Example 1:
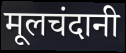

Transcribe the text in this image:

मूलचंदानी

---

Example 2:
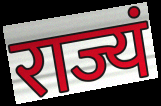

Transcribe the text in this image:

राज्यं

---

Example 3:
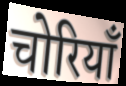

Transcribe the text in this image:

चोरियाँ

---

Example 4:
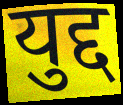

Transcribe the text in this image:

युद्द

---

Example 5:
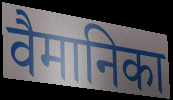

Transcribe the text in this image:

वैमानिका